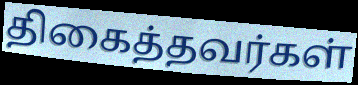
திகைத்தவர்கள்